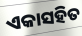
ଏକାସହିତ